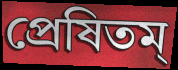
প্রেষিতম্